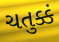
ચતુક્કં